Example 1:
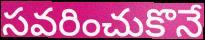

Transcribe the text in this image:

సవరించుకొనే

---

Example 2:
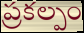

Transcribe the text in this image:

ప్రకల్పం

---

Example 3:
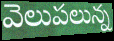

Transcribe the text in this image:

వెలుపలున్న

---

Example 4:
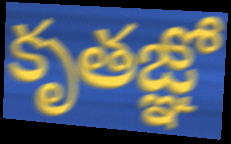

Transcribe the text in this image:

కృతజ్ఞో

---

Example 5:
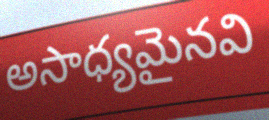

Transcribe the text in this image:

అసాధ్యమైనవి